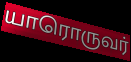
யாரொருவர்